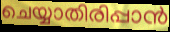
ചെയ്യാതിരിപ്പാൻ